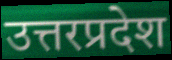
उत्तरप्रदेश